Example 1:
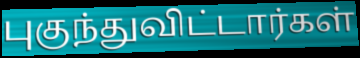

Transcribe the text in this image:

புகுந்துவிட்டார்கள்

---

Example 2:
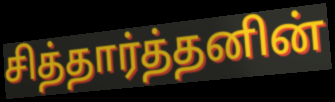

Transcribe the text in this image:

சித்தார்த்தனின்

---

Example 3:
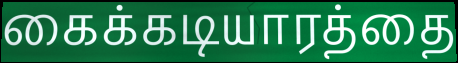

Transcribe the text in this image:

கைக்கடியாரத்தை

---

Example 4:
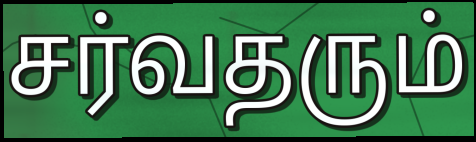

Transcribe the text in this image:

சர்வதரும்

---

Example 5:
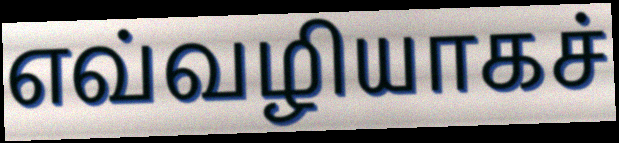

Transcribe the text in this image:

எவ்வழியாகச்